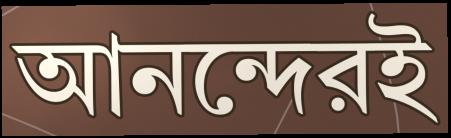
আনন্দেরই